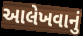
આલેખવાનું